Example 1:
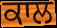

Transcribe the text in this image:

ਕਾਲ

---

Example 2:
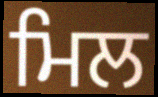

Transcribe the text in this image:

ਮਿਲ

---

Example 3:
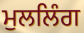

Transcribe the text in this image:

ਮੁਲਲਿੰਗ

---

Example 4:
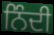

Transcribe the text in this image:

ਨਿੰਦੀ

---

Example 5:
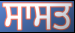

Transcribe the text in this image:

ਸਾਸਤ